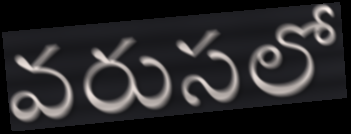
వరుసలో